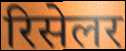
रिसेलर